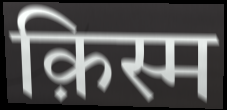
क़िस्म